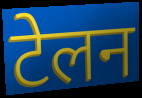
टेलन